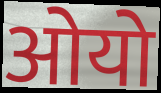
ओयो